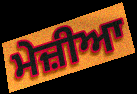
ਮੇਜ਼ੀਆ